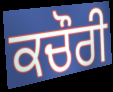
ਕਚੌਰੀ